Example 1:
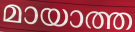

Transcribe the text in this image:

മായാത്ത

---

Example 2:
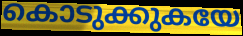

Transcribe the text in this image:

കൊടുക്കുകയേ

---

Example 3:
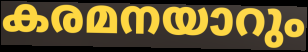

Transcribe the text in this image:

കരമനയാറും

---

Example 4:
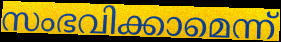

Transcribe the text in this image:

സംഭവിക്കാമെന്ന്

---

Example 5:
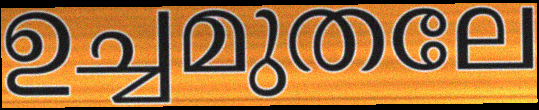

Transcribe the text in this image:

ഉച്ചമുതലേ